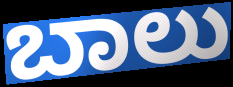
ಬಾಲು